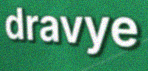
dravye